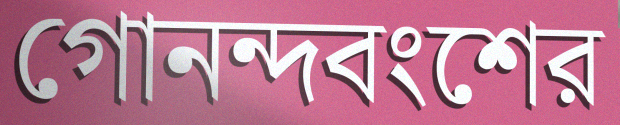
গোনন্দবংশের